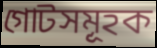
গোটসমূহক